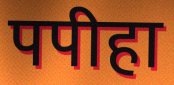
पपीहा